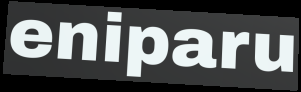
eniparu